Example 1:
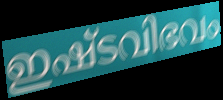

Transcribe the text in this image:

ഇഷ്ടവിഭവം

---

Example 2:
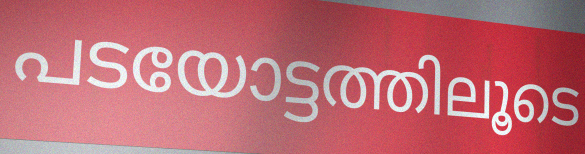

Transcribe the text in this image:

പടയോട്ടത്തിലൂടെ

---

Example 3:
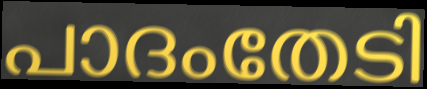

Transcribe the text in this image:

പാദംതേടി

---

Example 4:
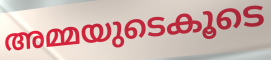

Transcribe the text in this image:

അമ്മയുടെകൂടെ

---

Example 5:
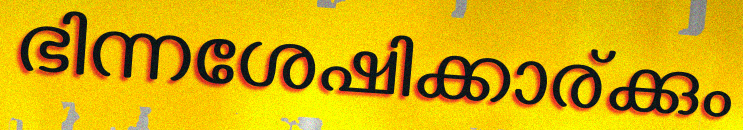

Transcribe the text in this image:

ഭിന്നശേഷിക്കാര്ക്കും